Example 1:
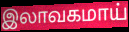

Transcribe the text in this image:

இலாவகமாய்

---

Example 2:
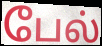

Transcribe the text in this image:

பேல்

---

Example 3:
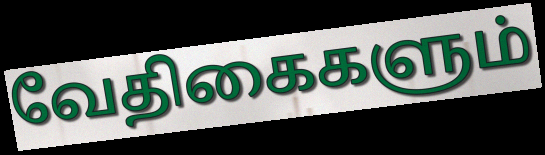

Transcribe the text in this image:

வேதிகைகளும்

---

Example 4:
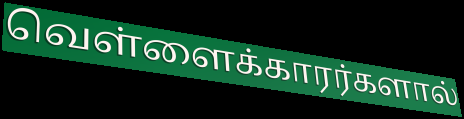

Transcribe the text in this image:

வெள்ளைக்காரர்களால்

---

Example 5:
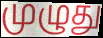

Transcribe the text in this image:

முழுது